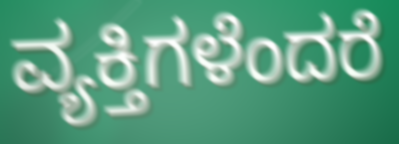
ವ್ಯಕ್ತಿಗಳೆಂದರೆ